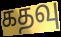
கதவு